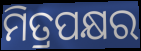
ମିତ୍ରପକ୍ଷର